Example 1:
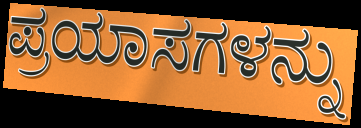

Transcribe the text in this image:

ಪ್ರಯಾಸಗಳನ್ನು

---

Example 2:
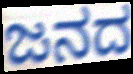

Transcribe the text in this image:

ಜನದ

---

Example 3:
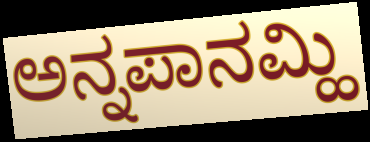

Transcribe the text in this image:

ಅನ್ನಪಾನಮ್ಹಿ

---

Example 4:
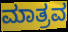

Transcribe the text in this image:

ಮಾತ್ರವ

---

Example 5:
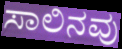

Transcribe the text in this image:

ಸಾಲಿನವು